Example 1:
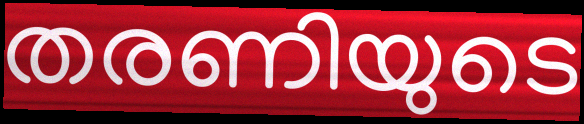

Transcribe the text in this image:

തരണിയുടെ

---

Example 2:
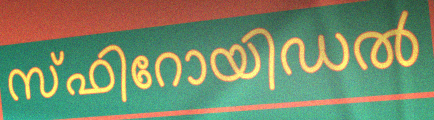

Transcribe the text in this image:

സ്ഫിറോയിഡൽ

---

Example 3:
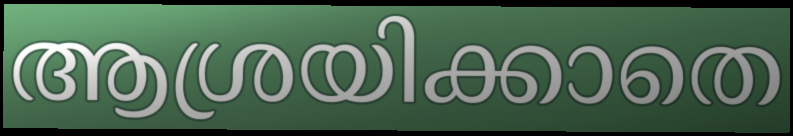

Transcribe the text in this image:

ആശ്രയിക്കാതെ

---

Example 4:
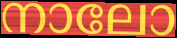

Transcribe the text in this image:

നാലോ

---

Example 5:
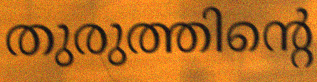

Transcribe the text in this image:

തുരുത്തിന്റെ